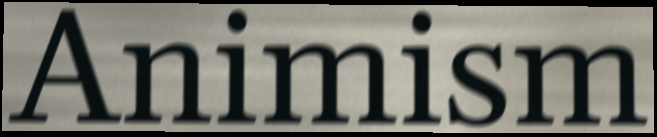
Animism